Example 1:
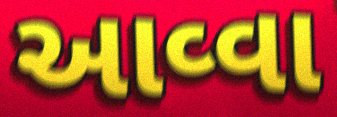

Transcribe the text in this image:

આવ્વા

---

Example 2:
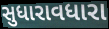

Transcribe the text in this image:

સુધારાવધારા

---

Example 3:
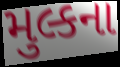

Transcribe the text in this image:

મુલ્કના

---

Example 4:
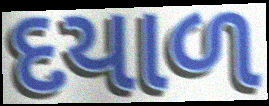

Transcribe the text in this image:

દયાળ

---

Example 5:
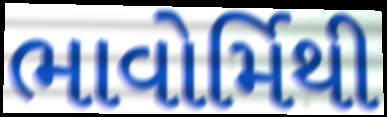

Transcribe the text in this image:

ભાવોર્મિથી